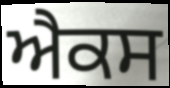
ਐਕਸ